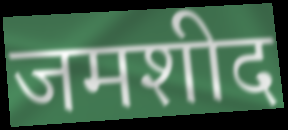
जमशीद